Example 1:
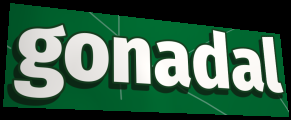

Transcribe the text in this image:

gonadal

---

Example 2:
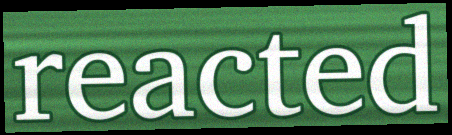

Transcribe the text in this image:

reacted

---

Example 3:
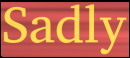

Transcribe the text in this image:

Sadly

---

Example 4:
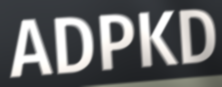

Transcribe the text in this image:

ADPKD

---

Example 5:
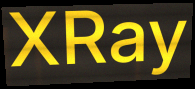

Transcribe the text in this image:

XRay